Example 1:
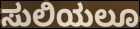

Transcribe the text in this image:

ಸುಲಿಯಲೂ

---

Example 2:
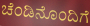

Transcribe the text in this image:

ಚೆಂಡಿನೊಂದಿಗೆ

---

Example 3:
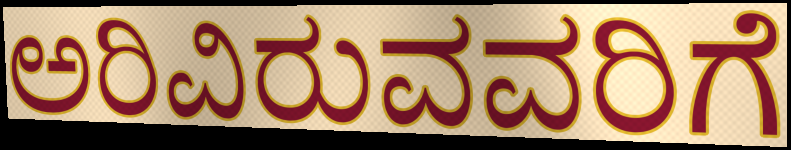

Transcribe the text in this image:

ಅರಿವಿರುವವರಿಗೆ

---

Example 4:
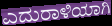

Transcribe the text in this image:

ಎದುರಾಳಿಯಾಗಿ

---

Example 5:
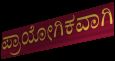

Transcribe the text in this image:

ಪ್ರಾಯೋಗಿಕವಾಗಿ